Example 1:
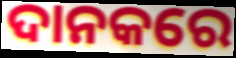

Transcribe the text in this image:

ଦାନକରେ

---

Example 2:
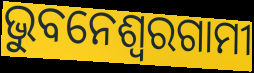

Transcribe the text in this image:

ଭୁବନେଶ୍ୱରଗାମୀ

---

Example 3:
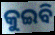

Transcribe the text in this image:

କୁଇବି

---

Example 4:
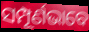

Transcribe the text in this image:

ସମ୍ପୂର୍ଣଭାବେ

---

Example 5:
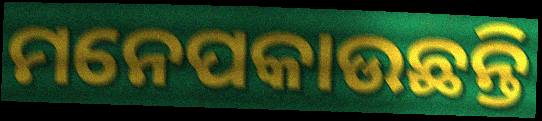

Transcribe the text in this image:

ମନେପକାଉଛନ୍ତି